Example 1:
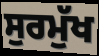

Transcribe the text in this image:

ਸੁਰਮੁੱਖ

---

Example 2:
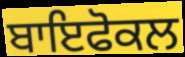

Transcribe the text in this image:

ਬਾਇਫੋਕਲ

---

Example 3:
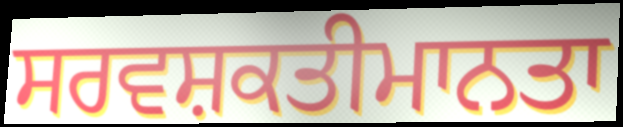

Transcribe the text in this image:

ਸਰਵਸ਼ਕਤੀਮਾਨਤਾ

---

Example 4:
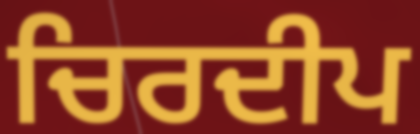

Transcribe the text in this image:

ਚਿਰਦੀਪ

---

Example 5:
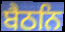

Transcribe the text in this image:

ਬੈਠਨਿ